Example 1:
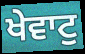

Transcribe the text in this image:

ਖੇਵਾਟੁ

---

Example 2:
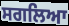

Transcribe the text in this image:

ਸਗਲਿਆ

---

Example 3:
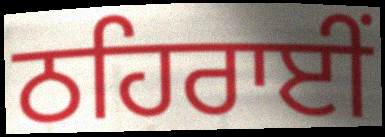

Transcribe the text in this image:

ਠਹਿਰਾਈਂ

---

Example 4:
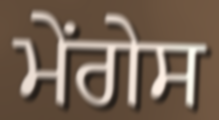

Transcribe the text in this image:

ਮੇਂਗੇਸ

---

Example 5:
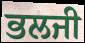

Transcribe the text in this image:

ਭਲਜੀ